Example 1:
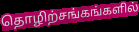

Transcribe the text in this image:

தொழிற்சங்கங்களில்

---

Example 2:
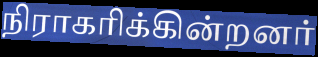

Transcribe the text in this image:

நிராகரிக்கின்றனர்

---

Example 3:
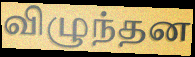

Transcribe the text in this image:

விழுந்தன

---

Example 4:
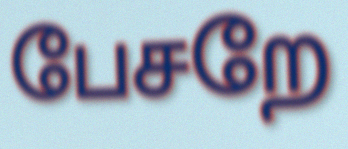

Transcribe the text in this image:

பேசறே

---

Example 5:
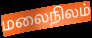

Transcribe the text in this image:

மலைநிலம்